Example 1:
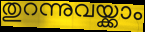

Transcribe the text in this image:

തുറന്നുവയ്ക്കാം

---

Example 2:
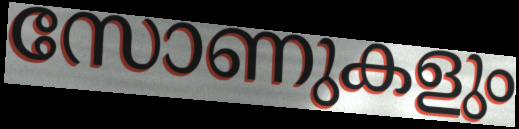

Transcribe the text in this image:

സോണുകളും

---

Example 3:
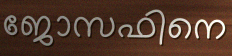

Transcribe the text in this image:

ജോസഫിനെ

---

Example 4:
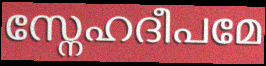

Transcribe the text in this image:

സ്നേഹദീപമേ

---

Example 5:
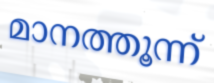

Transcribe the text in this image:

മാനത്തൂന്ന്